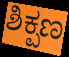
ಶಿಕ್ಪಣ